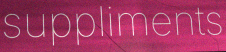
suppliments